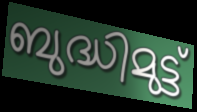
ബുദ്ധിമുട്ട്